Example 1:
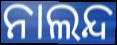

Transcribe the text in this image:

ନାଲନ୍ଦ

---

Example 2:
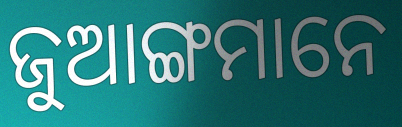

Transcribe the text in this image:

ଜୁଆଙ୍ଗମାନେ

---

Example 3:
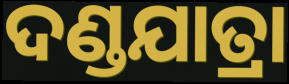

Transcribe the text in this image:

ଦଣ୍ଡଯାତ୍ରା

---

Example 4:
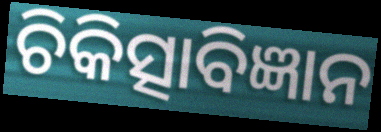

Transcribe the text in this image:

ଚିକିତ୍ସାବିଜ୍ଞାନ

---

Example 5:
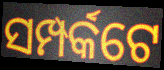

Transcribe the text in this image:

ସମ୍ପର୍କଟେ